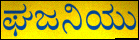
ಘಜನಿಯು